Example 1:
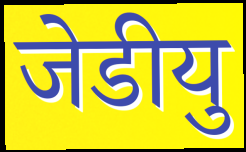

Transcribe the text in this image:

जेडीयु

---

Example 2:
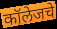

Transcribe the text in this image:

कॉलेजचे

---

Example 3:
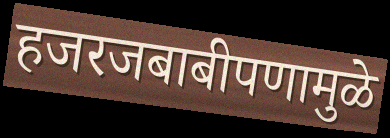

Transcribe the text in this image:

हजरजबाबीपणामुळे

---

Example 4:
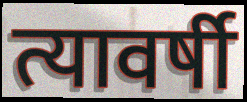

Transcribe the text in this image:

त्यावर्षी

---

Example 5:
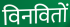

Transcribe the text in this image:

विनवितों